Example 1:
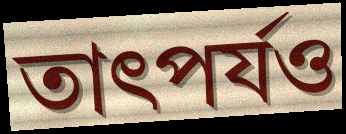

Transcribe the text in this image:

তাৎপর্যও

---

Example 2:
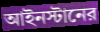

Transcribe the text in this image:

আইনস্টানের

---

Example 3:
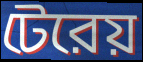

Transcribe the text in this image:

টেরেয়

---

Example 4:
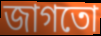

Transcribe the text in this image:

জাগতো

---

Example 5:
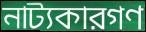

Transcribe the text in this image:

নাট্যকারগণ